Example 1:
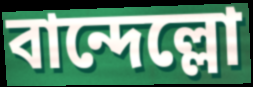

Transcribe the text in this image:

বান্দেল্লো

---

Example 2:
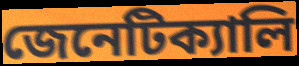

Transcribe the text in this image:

জেনেটিক্যালি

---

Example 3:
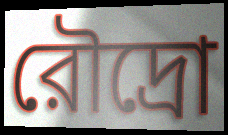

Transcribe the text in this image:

রৌদ্রো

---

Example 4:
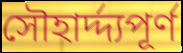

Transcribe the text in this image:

সৌহার্দ্দ্যপূর্ণ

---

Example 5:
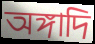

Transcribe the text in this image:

অঙ্গাদি